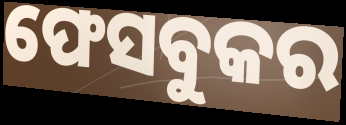
ଫେସବୁକର